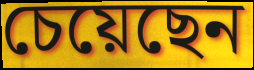
চেয়েছেন